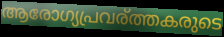
ആരോഗ്യപ്രവര്ത്തകരുടെ